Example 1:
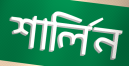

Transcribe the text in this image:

শার্লিন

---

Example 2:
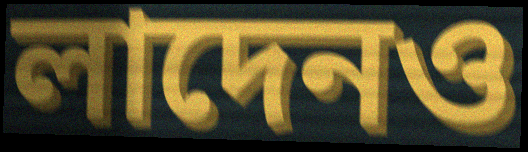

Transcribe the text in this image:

লাদেনও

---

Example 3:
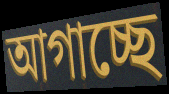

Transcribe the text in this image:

আগাচ্ছে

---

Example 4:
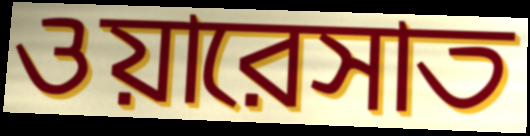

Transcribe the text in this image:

ওয়ারেসাত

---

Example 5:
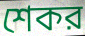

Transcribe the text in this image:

শেকর